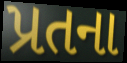
પ્રતના